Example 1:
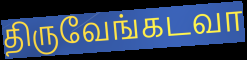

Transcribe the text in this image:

திருவேங்கடவா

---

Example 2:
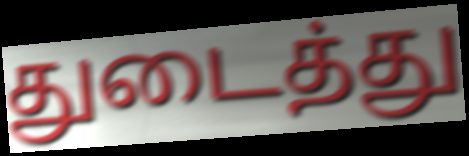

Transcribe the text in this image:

துடைத்து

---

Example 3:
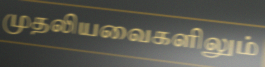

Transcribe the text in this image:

முதலியவைகளிலும்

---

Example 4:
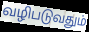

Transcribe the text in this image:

வழிபடுவதும்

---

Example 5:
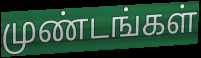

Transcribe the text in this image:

முண்டங்கள்